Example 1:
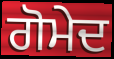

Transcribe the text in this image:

ਗੋਮੇਦ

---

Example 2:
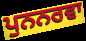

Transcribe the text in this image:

ਪੁਨਨਰਵਾ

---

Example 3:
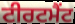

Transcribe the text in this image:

ਟੀਰਟਮੈਂਟ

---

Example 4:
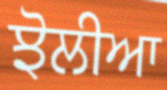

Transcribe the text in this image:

ਝੋਲੀਆ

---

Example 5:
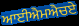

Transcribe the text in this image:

ਆਈਐਮਐਚਏ